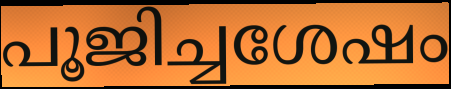
പൂജിച്ചശേഷം